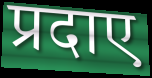
प्रदाए